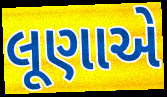
લૂણાએ